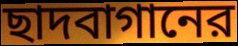
ছাদবাগানের